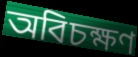
অবিচক্ষণ